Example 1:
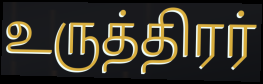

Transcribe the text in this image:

உருத்திரர்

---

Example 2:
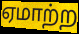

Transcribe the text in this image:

ஏமாற்ற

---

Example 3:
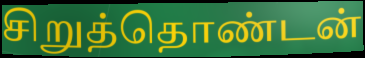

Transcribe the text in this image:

சிறுத்தொண்டன்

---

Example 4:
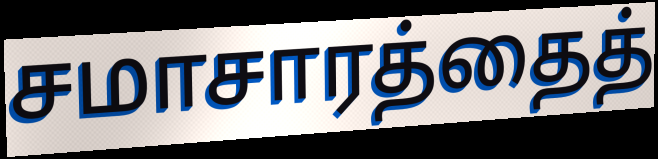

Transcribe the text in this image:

சமாசாரத்தைத்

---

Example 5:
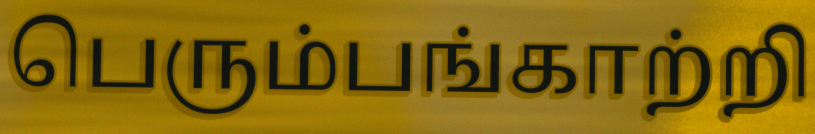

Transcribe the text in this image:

பெரும்பங்காற்றி